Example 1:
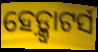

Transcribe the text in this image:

ହେଡ଼୍କ୍ୱାଟର୍ସ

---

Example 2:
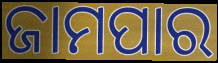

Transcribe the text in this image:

ଜାମପାର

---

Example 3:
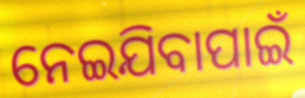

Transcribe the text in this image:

ନେଇଯିବାପାଇଁ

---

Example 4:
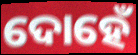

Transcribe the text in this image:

ଦୋହେଁ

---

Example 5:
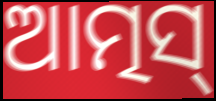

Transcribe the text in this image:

ଆତ୍ମସ୍